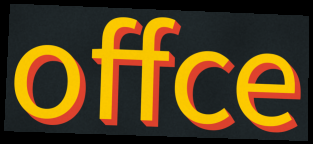
offce